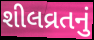
શીલવ્રતનું